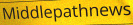
Middlepathnews